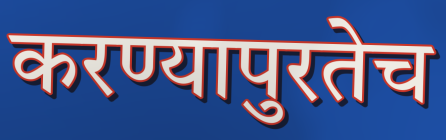
करण्यापुरतेच